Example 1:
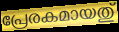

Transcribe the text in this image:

പ്രേരകമായതു്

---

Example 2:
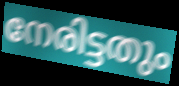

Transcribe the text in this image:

നേരിട്ടതും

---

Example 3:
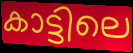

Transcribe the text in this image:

കാട്ടിലെ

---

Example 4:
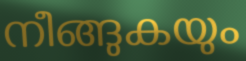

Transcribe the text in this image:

നീങ്ങുകയും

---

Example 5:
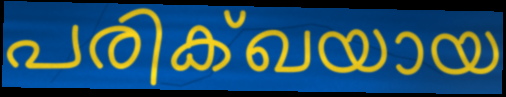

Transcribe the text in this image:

പരിക്ഖയായ